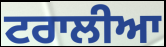
ਟਰਾਲੀਆ